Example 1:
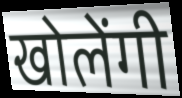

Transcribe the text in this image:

खोलेंगी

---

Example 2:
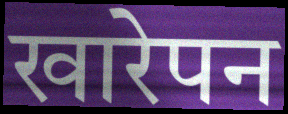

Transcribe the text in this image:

खारेपन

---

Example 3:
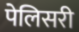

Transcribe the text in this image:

पेलिसरी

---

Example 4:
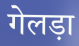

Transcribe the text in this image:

गेलड़ा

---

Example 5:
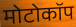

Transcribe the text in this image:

मोटोकॉप